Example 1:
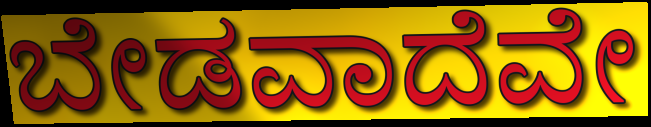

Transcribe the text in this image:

ಬೇಡವಾದೆವೇ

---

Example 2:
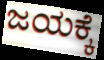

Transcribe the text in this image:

ಜಯಕ್ಕೆ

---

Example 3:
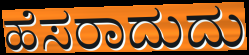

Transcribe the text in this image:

ಹೆಸರಾದುದು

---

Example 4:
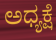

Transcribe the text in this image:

ಅಧ್ಯಕ್ಷೆ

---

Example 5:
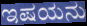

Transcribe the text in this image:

ಇಷಯನು